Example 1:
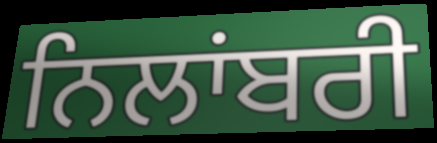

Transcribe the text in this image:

ਨਿਲਾਂਬਰੀ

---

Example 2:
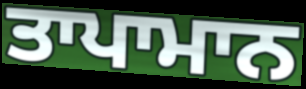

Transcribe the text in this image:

ਤਾਪਾਮਾਨ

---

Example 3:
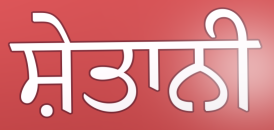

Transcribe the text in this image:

ਸ਼ੇਤਾਨੀ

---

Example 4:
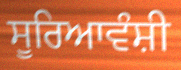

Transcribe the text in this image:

ਸੂਰਿਆਵੰਸ਼ੀ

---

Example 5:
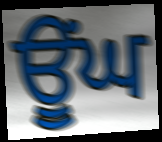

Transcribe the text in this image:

ਊਂਘ